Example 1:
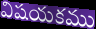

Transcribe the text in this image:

విషయకము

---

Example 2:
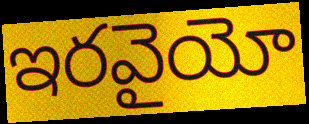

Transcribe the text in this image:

ఇరవైయో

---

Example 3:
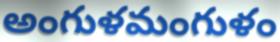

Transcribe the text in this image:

అంగుళమంగుళం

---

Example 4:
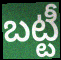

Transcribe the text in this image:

బట్టీ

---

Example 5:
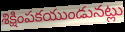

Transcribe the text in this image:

శిక్షింపకయుండునట్లు